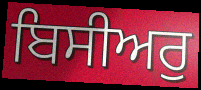
ਬਿਸੀਅਰੁ